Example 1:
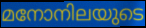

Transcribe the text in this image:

മനോനിലയുടെ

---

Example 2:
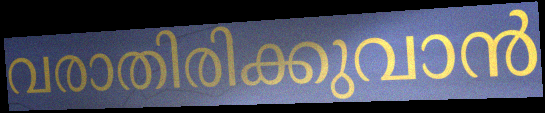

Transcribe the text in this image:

വരാതിരിക്കുവാൻ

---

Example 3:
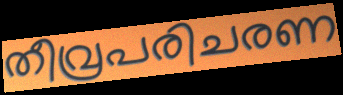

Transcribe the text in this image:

തീവ്രപരിചരണ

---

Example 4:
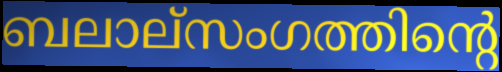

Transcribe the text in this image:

ബലാല്സംഗത്തിന്റെ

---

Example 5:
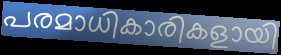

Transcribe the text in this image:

പരമാധികാരികളായി